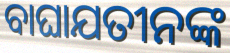
ବାଘାଯତୀନଙ୍କ